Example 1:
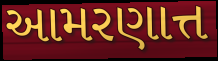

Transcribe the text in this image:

આમરણાત્ત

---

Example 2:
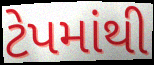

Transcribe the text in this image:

ટેપમાંથી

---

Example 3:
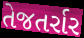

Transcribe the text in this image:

તેજતર્રાર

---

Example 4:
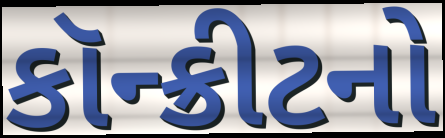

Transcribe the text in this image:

કૉન્ક્રીટનો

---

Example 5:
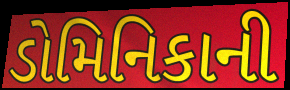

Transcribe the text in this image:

ડોમિનિકાની